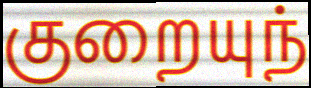
குறையுந்